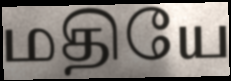
மதியே